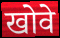
खोवे